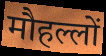
मौहल्लों